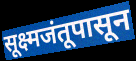
सूक्ष्मजंतूपासून